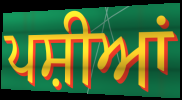
ਪਸ਼ੀਆਂ